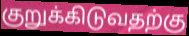
குறுக்கிடுவதற்கு